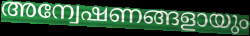
അന്വേഷണങ്ങളായും